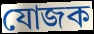
যোজক